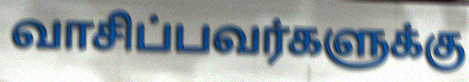
வாசிப்பவர்களுக்கு